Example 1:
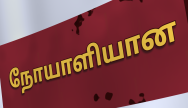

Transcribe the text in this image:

நோயாளியான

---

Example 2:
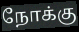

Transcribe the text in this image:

நோக்கு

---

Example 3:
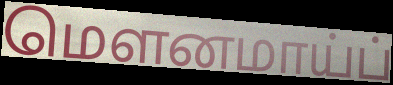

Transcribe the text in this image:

மௌனமாய்ப்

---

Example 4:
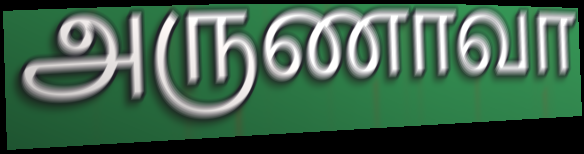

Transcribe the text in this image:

அருணாவா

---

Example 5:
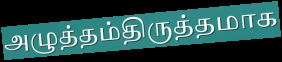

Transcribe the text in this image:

அழுத்தம்திருத்தமாக